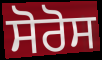
ਸੋਰੋਸ